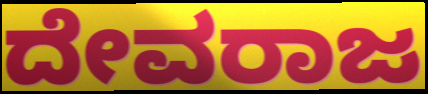
ದೇವರಾಜ